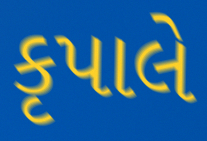
કૃપાલે